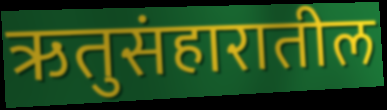
ऋतुसंहारातील